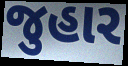
જુહાર